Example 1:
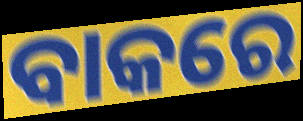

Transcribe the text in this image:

ବାକରେ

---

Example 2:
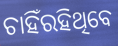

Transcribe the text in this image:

ଚାହିଁରହିଥିବେ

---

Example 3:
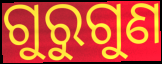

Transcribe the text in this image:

ଗୁରୁଗୁଣ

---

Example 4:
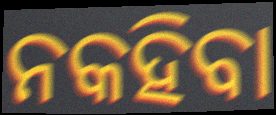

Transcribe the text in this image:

ନକହିବା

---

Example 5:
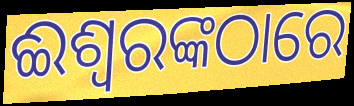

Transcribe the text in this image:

ଈଶ୍ୱରଙ୍କଠାରେ